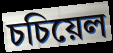
চচিয়েল